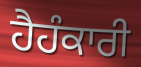
ਹੈਹੰਕਾਰੀ